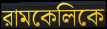
রামকেলিকে